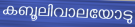
കബൂലിവാലയോടു